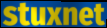
stuxnet